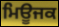
ਮਿਊਜਕ